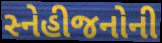
સ્નેહીજનોની